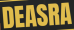
DEASRA